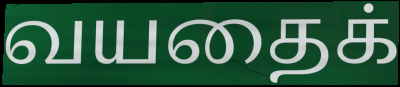
வயதைக்